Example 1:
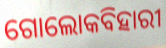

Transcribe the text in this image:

ଗୋଲୋକବିହାରୀ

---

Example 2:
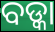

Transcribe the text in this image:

ବଡ୍କା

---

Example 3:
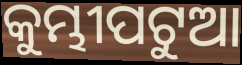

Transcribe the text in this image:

କୁମ୍ଭୀପଟୁଆ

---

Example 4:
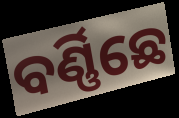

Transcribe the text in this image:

ବର୍ଣ୍ଣିଛେ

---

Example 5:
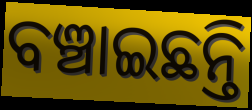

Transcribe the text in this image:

ବଞ୍ଚାଇଛନ୍ତି